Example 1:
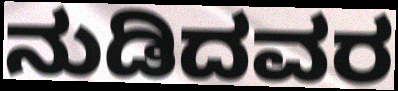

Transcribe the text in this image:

ನುಡಿದವರ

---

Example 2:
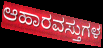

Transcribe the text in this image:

ಆಹಾರವಸ್ತುಗಳ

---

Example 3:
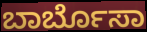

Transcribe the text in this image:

ಬಾರ್ಬೊಸಾ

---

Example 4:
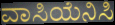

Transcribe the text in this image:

ವಾಸಿಯೆನಿಸಿ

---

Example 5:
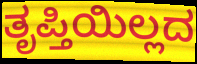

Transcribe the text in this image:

ತೃಪ್ತಿಯಿಲ್ಲದ